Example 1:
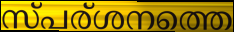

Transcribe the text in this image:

സ്പര്ശനത്തെ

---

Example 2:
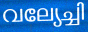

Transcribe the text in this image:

വല്യേച്ചി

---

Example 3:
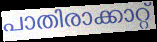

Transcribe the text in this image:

പാതിരാക്കാറ്റ്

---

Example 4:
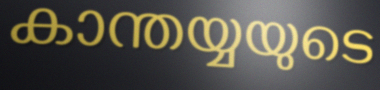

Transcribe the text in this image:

കാന്തയ്യയുടെ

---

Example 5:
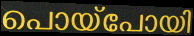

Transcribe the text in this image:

പൊയ്പോയി